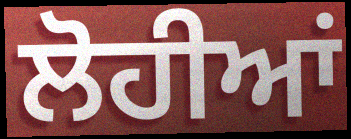
ਲੋਹੀਆਂ